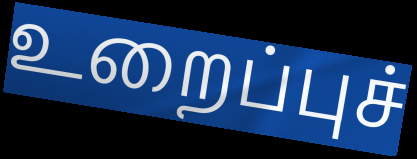
உறைப்புச்